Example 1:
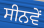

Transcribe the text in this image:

ਸੀਨਵੇਂ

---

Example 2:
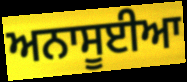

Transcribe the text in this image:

ਅਨਾਸੂਈਆ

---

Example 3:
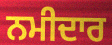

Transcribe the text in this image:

ਨਮੀਦਾਰ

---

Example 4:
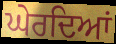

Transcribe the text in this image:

ਘੇਰਦਿਆਂ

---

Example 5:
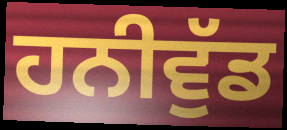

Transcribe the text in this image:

ਹਨੀਵੁੱਡ